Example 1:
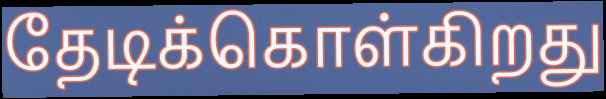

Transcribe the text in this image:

தேடிக்கொள்கிறது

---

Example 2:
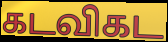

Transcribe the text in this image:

கடவிகட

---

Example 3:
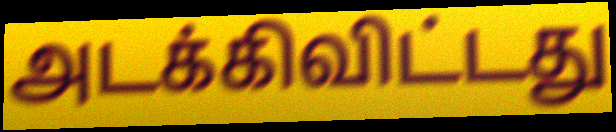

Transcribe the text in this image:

அடக்கிவிட்டது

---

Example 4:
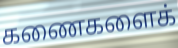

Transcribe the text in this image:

கணைகளைக்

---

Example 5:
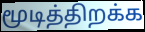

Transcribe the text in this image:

மூடித்திறக்க